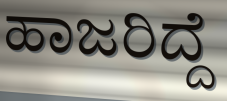
ಹಾಜರಿದ್ದೆ